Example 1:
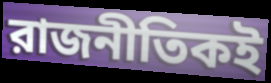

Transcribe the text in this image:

রাজনীতিকই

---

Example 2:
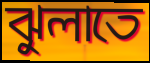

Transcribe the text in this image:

ঝুলাতে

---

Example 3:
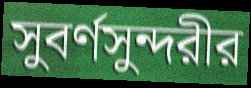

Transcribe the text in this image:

সুবর্ণসুন্দরীর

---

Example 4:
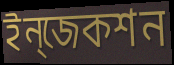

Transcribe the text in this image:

ইন্‌জেকশন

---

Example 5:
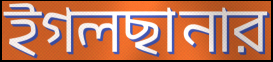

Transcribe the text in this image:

ইগলছানার